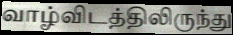
வாழ்விடத்திலிருந்து